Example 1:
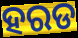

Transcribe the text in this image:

ହରଡ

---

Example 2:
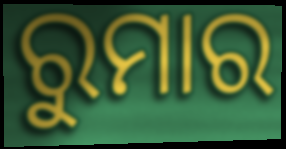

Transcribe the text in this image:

ରୁମାର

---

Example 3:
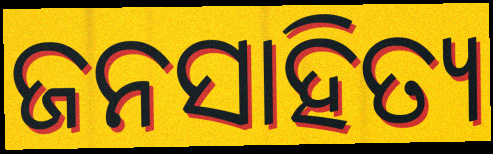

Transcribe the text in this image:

ଜନସାହିତ୍ୟ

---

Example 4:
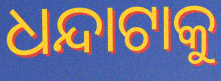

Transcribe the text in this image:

ଧନ୍ଦାଟାକୁ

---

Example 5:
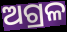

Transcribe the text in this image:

ଅଗ୍ରଳ